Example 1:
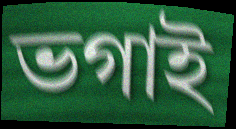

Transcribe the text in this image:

ভগাই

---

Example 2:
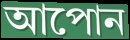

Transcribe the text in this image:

আপোন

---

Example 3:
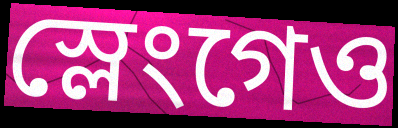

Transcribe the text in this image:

স্লেংগেও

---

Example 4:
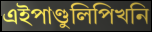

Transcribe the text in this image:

এইপাণ্ডুলিপিখনি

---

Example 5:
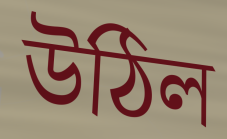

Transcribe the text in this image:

উঠিল